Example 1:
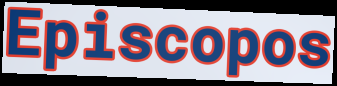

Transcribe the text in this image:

Episcopos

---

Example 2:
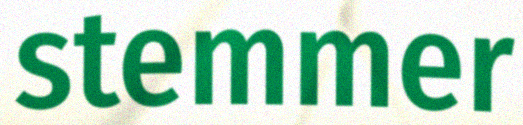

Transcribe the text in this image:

stemmer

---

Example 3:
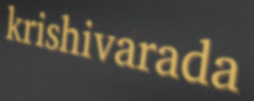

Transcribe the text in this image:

krishivarada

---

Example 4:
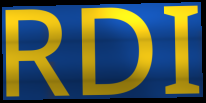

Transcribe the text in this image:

RDI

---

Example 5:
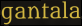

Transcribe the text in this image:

gantala